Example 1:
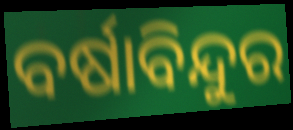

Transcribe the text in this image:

ବର୍ଷାବିନ୍ଦୁର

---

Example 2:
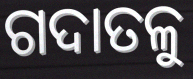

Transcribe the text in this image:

ଗଦାତଳୁ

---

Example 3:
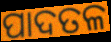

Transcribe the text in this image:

ପାଦତଳ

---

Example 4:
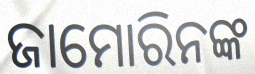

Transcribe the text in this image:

ଜାମୋରିନଙ୍କ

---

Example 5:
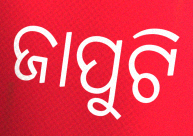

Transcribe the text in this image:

ଜାପୁଟି